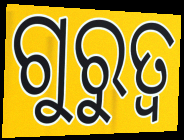
ଗୁରୁତ୍ୱ